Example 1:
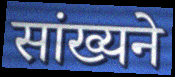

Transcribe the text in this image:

सांख्यने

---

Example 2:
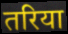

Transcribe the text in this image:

तरिया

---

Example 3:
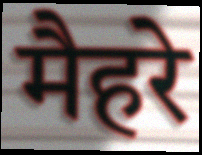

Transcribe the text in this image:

मैहरे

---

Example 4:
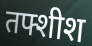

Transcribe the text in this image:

तफ्शीश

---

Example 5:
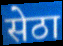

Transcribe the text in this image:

सेठा